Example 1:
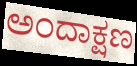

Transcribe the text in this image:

ಅಂದಾಕ್ಷಣ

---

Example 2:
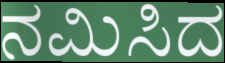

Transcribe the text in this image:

ನಮಿಸಿದ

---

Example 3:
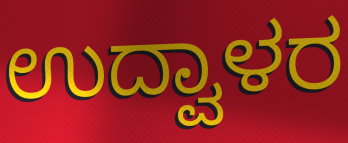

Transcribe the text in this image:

ಉದ್ವಾಳರ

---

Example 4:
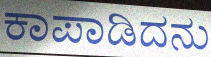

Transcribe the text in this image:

ಕಾಪಾಡಿದನು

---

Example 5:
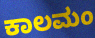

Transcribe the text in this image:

ಕಾಲಮಂ